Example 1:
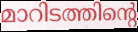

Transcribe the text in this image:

മാറിടത്തിന്റെ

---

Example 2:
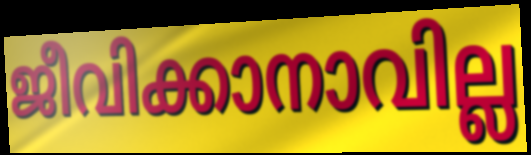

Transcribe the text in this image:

ജീവിക്കാനാവില്ല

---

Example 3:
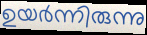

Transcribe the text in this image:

ഉയർന്നിരുന്നു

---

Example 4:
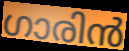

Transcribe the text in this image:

ഗാരിൻ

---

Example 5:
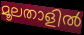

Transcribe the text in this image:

മൂലതാളിൽ